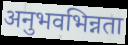
अनुभवभिन्नता